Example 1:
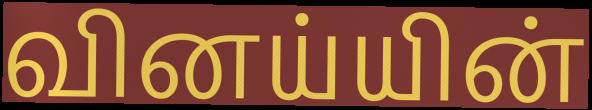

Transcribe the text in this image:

வினய்யின்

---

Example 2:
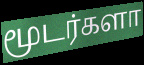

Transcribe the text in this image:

மூடர்களா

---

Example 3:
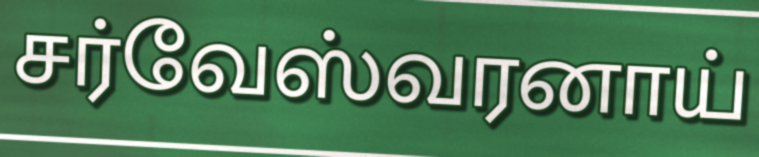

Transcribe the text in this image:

சர்வேஸ்வரனாய்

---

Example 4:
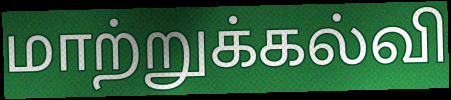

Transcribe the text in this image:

மாற்றுக்கல்வி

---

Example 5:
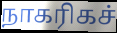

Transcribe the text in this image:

நாகரிகச்